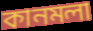
কানমলা